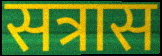
सत्रास